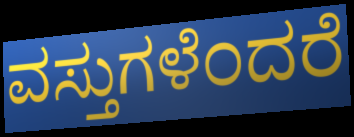
ವಸ್ತುಗಳೆಂದರೆ